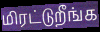
மிரட்டுறீங்க